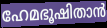
ഹേമഭൂഷിതാൻ